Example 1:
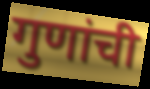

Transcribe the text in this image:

गुणांची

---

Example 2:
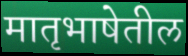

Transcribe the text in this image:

मातृभाषेतील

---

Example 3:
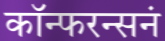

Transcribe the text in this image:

कॉन्फरन्सनं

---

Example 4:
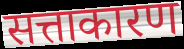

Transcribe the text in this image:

सत्ताकारण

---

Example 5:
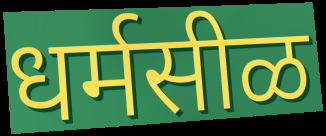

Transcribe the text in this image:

धर्मसीळ